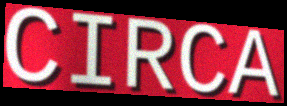
CIRCA